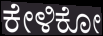
ಕೇಳಿಕೋ